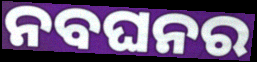
ନବଘନର